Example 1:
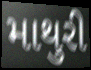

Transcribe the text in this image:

માથુરી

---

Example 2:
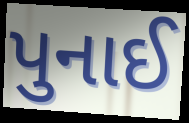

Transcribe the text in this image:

પુનાઈ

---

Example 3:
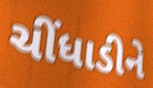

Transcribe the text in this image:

ચીંધાડીને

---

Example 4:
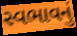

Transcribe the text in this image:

સ્વભાવનું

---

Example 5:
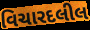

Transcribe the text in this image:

વિચારદલીલ